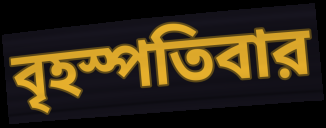
বৃহস্পতিবার